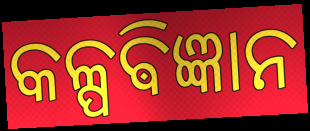
କଳ୍ପଵିଜ୍ଞାନ